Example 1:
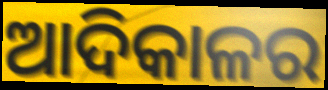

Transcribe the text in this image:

ଆଦିକାଳର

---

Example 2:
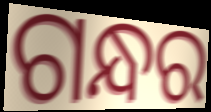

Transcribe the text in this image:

ଗନ୍ଧର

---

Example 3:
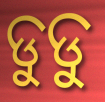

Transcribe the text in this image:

ଡୁଡୁ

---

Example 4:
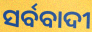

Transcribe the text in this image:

ସର୍ବବାଦୀ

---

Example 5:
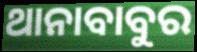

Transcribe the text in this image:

ଥାନାବାବୁର